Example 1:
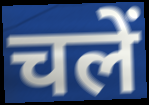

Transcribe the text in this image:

चलें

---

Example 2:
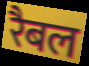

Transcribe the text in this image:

रैबल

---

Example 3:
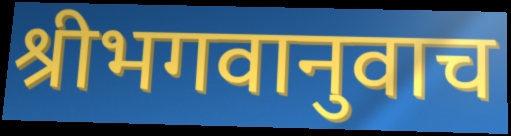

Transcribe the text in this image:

श्रीभगवानुवाच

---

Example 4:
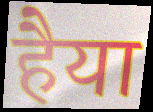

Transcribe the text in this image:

हैया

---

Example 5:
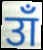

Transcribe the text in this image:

उाँ